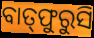
ବାତ୍‌ଫୁରୁସି